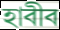
হাবীব